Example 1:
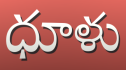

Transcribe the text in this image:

ధూళు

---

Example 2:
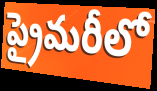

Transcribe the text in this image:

ప్రైమరీలో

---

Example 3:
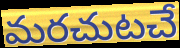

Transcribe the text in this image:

మరచుటచే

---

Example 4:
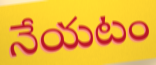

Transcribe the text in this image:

నేయటం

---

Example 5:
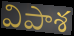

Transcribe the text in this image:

విపాశ